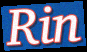
Rin